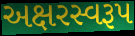
અક્ષરસ્વરૂપ